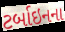
ટર્બાઇનના